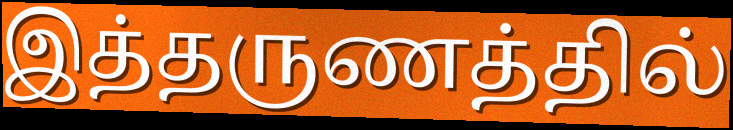
இத்தருணத்தில்